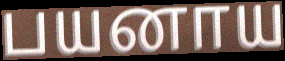
பயனாய